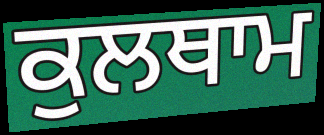
ਕੁਲਥਾਮ